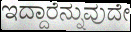
ಇದ್ದಾರೆನ್ನುವುದೇ